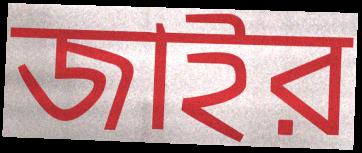
জাইর